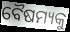
ବୈଷମ୍ୟକୁ